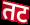
तट